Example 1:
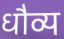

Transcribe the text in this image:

धौव्य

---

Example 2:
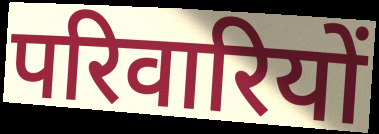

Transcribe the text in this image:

परिवारियों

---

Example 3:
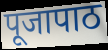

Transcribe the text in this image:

पूजापाठ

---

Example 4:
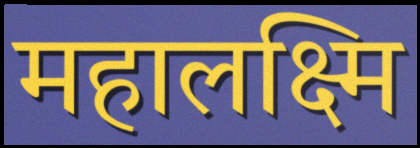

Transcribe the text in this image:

महालक्ष्मि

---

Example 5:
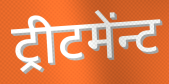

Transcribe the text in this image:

ट्रीटमेंन्ट